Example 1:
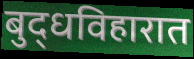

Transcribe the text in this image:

बुद्धविहारात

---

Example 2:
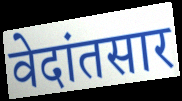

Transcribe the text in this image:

वेदांतसार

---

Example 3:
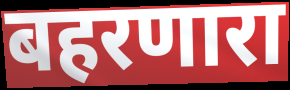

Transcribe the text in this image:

बहरणारा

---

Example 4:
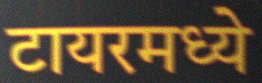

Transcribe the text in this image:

टायरमध्ये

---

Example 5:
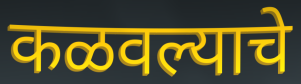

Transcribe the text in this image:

कळवल्याचे